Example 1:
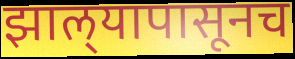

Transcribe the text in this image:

झाल्यापासूनच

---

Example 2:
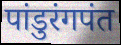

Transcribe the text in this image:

पांडुरंगपंत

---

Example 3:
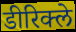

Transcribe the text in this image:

डीरिक्ले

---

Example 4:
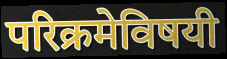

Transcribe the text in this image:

परिक्रमेविषयी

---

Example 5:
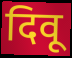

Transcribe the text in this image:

दिवू